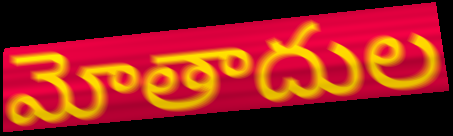
మోతాదుల